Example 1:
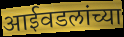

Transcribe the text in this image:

आईवडलांच्या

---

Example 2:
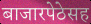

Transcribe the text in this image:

बाजारपेठेसह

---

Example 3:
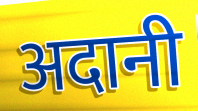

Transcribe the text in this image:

अदानी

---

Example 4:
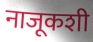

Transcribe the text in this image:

नाजूकशी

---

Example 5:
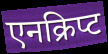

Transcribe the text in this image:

एनक्रिप्ट